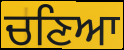
ਚਣਿਆ